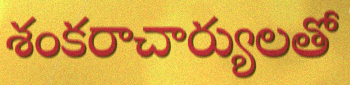
శంకరాచార్యులతో